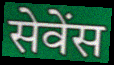
सेवेंस